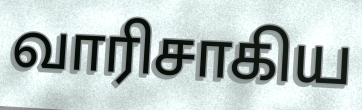
வாரிசாகிய